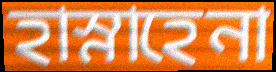
হাস্নাহেনা